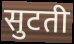
सुटती